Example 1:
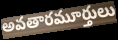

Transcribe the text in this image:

అవతారమూర్తులు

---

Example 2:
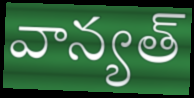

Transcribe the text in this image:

వాన్యత్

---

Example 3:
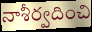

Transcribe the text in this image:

నాశీర్వదించి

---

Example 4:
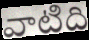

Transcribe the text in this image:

వాటిది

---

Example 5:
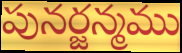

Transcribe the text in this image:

పునర్జన్మము